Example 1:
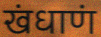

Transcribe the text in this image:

खंधाणं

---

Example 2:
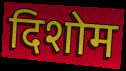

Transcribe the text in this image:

दिशोम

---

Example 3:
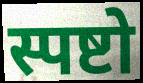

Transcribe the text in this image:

स्पष्टो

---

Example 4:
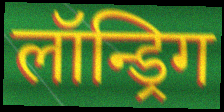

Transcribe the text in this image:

लॉन्ड्रिग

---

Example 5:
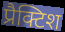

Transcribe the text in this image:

प्रैक्टिश